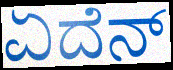
ಏದೆನ್